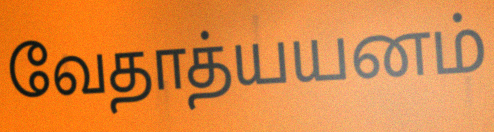
வேதாத்யயனம்